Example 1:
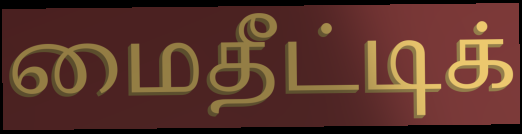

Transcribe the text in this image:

மைதீட்டிக்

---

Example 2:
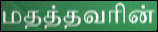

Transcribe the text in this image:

மதத்தவரின்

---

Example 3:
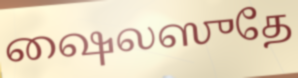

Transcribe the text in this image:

ஷைலஸுதே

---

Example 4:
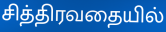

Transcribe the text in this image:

சித்திரவதையில்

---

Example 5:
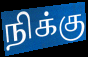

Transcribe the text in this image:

நிக்கு